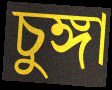
চুঙ্গা